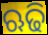
ଋଢି